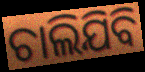
ଚାଲିଯିବି